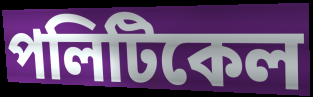
পলিটিকেল